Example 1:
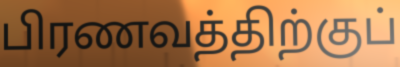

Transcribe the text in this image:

பிரணவத்திற்குப்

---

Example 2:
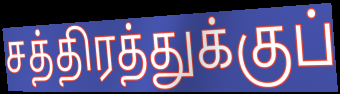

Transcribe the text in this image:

சத்திரத்துக்குப்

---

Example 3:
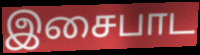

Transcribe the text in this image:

இசைபாட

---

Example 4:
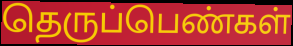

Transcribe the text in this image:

தெருப்பெண்கள்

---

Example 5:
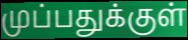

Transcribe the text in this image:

முப்பதுக்குள்